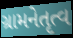
ગ્રામનેતૃત્વ